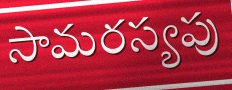
సామరస్యపు